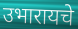
उभारायचे